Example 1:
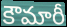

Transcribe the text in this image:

కౌమారీ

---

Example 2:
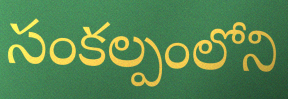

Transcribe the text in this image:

సంకల్పంలోని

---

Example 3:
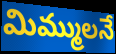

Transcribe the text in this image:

మిమ్ములనే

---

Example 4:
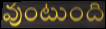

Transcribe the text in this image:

వుంటుంది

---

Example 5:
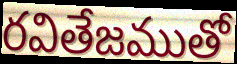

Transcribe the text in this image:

రవితేజముతో